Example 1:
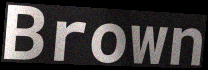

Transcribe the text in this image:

Brown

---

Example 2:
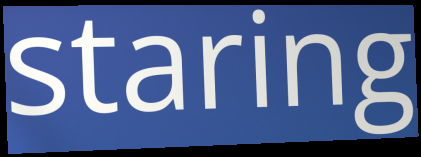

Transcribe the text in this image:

staring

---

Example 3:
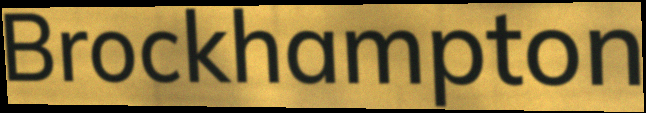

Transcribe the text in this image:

Brockhampton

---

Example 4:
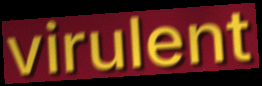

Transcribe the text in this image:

virulent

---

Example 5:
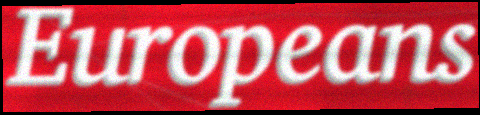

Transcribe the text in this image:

Europeans